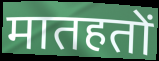
मातहतों